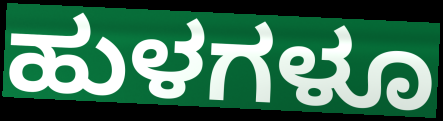
ಹುಳಗಳೂ